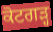
ਕੋਟਗੜ੍ਹ